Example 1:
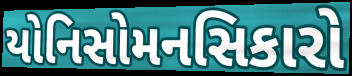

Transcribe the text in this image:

યોનિસોમનસિકારો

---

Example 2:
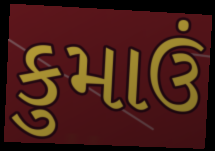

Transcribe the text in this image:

કુમાઉં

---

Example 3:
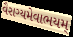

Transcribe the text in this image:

વૈરાગ્યમેવાભયમ્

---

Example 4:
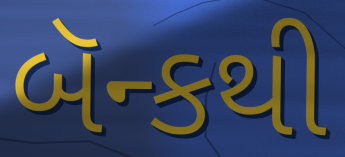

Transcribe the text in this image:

બૅન્કથી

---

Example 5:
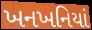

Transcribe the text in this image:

ખનખનિયાં